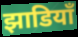
झाडियाँ